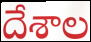
దేశాల